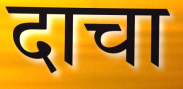
दाचा